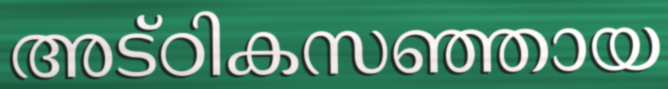
അട്ഠികസഞ്ഞായ